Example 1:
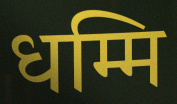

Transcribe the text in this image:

धम्मि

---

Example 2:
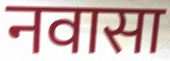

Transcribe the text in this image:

नवासा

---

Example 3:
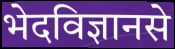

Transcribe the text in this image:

भेदविज्ञानसे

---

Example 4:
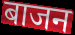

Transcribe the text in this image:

बाजन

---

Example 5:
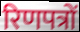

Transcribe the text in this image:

रिणपत्रों